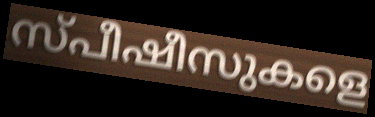
സ്പീഷീസുകളെ